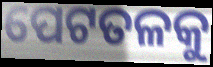
ପେଟତଳକୁ